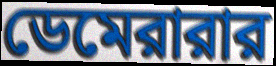
ডেমেরারার